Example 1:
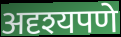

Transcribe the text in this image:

अदृश्यपणे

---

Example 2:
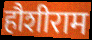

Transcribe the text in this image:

हौशीराम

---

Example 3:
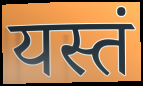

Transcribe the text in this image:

यस्तं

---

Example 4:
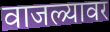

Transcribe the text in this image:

वाजल्यावर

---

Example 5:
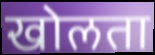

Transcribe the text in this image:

खोलता